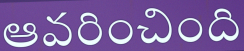
ఆవరించింది